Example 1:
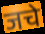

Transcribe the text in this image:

जचे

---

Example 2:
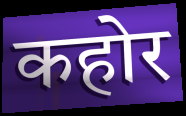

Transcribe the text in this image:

कहोर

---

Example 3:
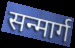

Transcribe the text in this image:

सन्मार्ग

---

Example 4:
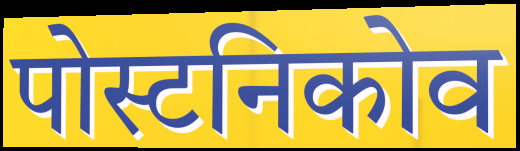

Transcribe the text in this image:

पोस्टनिकोव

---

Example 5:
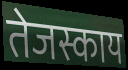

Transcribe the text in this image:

तेजस्काय